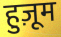
हुज़ूम